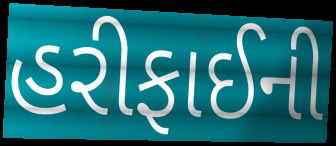
હરીફાઈની